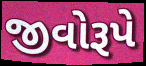
જીવોરૂપે